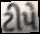
ટીપે